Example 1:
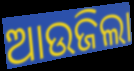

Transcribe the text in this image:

ଆଉଜିଲା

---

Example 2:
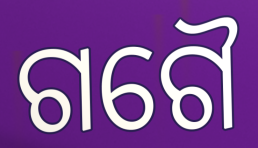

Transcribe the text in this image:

ଗଗୈ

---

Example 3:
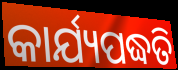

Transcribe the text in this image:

କାର୍ଯ୍ୟପଦ୍ଧତି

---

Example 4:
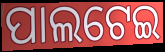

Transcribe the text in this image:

ପାଲଟେଇ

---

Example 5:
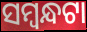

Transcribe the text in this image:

ସମ୍ବନ୍ଧଟା